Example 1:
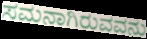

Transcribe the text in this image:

ಸಮನಾಗಿರುವವನು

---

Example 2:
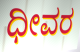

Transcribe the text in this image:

ಧೀವರ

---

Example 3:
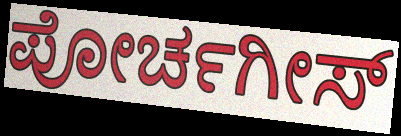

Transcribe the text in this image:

ಪೋರ್ಚಗೀಸ್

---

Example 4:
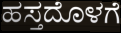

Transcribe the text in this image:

ಹಸ್ತದೊಳಗೆ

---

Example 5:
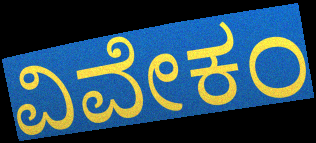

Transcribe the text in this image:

ವಿವೇಕಂ